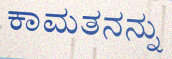
ಕಾಮತನನ್ನು